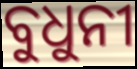
ବୁଧୁନୀ